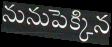
నునుపెక్కిన